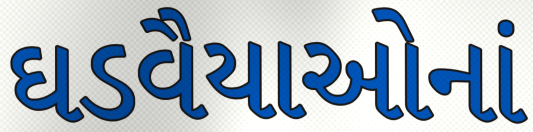
ઘડવૈયાઓનાં